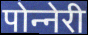
पोन्नेरी